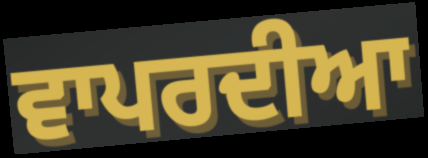
ਵਾਪਰਦੀਆ